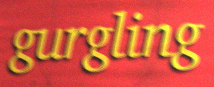
gurgling